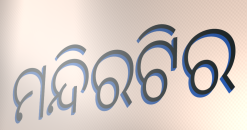
ମନ୍ଦିରଟିର